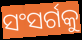
ସଂସର୍ଗକୁ